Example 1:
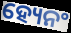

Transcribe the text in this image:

ହ୍ୟେନଂ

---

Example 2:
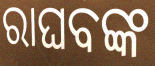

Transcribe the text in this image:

ରାଘବଙ୍କ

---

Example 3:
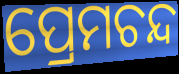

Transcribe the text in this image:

ପ୍ରେମଚନ୍ଦ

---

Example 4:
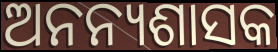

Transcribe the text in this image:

ଅନନ୍ୟଶାସକ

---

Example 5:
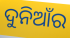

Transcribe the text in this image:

ଦୁନିଆଁର